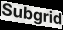
Subgrid